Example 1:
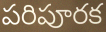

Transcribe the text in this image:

పరిపూరక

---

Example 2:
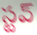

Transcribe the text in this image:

స్టవ్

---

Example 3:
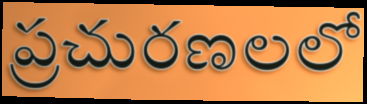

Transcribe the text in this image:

ప్రచురణలలో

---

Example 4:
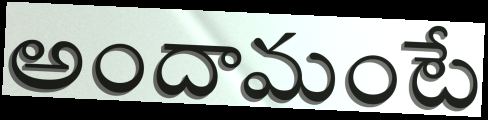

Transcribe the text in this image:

అందామంటే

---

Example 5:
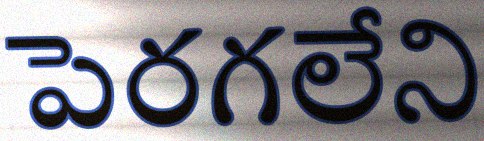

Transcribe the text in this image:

పెరగలేని